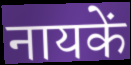
नायकें